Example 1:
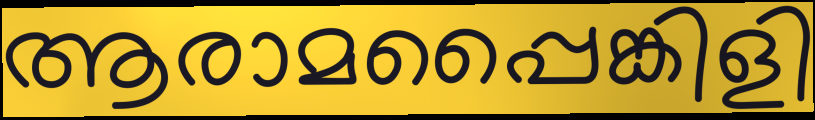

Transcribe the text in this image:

ആരാമപ്പൈങ്കിളി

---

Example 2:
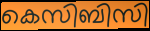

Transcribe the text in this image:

കെസിബിസി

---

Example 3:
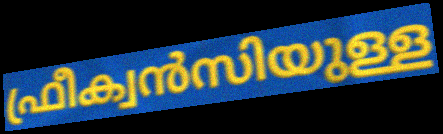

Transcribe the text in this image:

ഫ്രീക്വൻസിയുള്ള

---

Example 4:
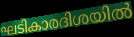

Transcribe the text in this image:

ഘടികാരദിശയിൽ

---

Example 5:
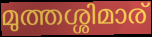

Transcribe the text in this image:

മുത്തശ്ശിമാര്